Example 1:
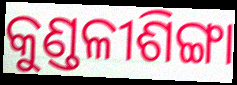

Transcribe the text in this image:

କୁଣ୍ଡଳୀଶିଙ୍ଗା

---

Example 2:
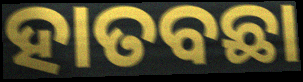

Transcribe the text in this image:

ହାତବଛା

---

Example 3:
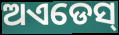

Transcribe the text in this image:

ଅଏଡେସ୍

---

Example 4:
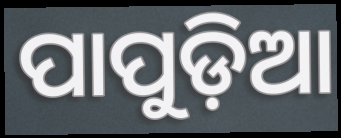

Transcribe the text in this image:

ପାପୁଡ଼ିଆ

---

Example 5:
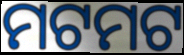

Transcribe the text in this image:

ମଟମଟ